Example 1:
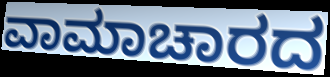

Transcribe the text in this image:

ವಾಮಾಚಾರದ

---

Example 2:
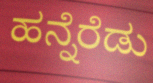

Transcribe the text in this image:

ಹನ್ನೆರೆಡು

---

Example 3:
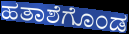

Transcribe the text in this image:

ಹತಾಶೆಗೊಂಡ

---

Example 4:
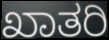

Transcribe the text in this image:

ಖಾತರಿ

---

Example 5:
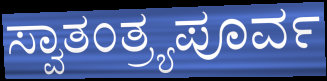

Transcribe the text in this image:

ಸ್ವಾತಂತ್ರ್ಯಪೂರ್ವ